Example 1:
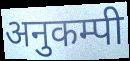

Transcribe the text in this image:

अनुकम्पी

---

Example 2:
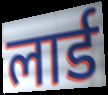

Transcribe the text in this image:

लार्ड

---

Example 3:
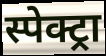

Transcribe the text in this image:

स्पेक्ट्रा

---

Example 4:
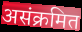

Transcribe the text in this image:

असंक्रमित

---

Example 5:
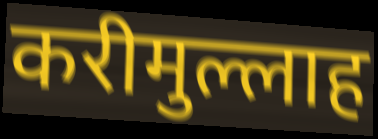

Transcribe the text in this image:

करीमुल्लाह